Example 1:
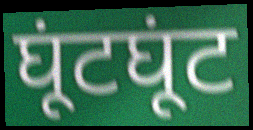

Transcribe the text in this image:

घूंटघूंट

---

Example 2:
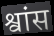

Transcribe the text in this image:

श्वांस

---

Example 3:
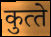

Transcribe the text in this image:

कुत्‍ते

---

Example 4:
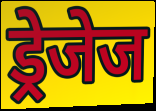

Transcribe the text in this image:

ड्रेजेज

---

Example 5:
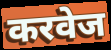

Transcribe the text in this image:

करवेज